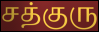
சத்குரு